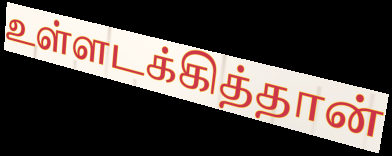
உள்ளடக்கித்தான்